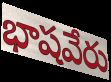
భాషవేరు